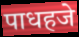
पाधहजे